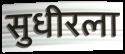
सुधीरला